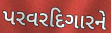
પરવરદિગારને